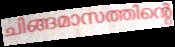
ചിങ്ങമാസത്തിന്റെ